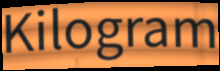
Kilogram